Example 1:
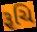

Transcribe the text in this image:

રૂચિ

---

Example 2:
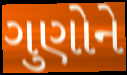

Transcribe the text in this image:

ગુણોને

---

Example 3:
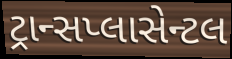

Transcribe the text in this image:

ટ્રાન્સપ્લાસેન્ટલ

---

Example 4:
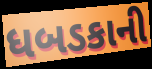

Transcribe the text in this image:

ધબડકાની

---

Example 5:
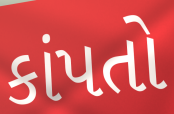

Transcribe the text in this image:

કાંપતો